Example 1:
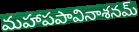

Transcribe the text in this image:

మహాపపావినాశనమ్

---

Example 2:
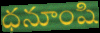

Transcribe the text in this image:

ధనూంషి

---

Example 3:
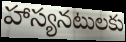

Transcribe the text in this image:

హాస్యనటులకు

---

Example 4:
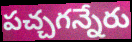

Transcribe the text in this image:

పచ్చగన్నేరు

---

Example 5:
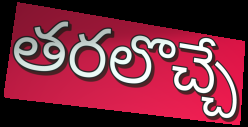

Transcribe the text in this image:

తరలొచ్చే